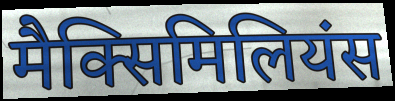
मैक्सिमिलियंस